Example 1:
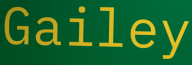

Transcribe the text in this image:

Gailey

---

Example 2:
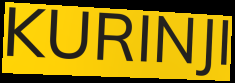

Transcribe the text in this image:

KURINJI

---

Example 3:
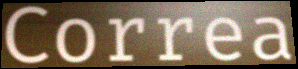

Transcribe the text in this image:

Correa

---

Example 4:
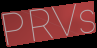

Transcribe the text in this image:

PRVs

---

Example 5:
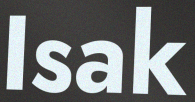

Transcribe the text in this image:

Isak